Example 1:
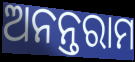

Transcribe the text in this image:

ଅନନ୍ତରାମ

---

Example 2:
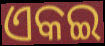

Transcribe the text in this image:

ଏକଇ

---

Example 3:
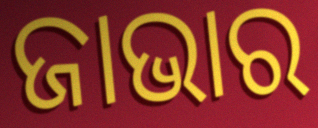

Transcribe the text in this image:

ଜାଭାର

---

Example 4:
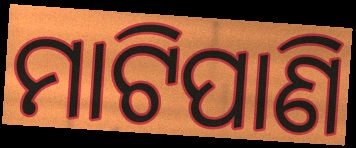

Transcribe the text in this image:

ମାଟିପାଣି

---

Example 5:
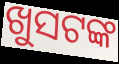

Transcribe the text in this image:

ଖୁସଟଙ୍କ